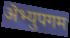
ऄभ्युपगम